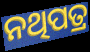
ନଥିପତ୍ର